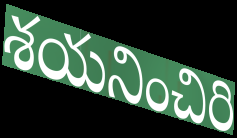
శయనించిరి